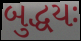
બુદ્ધયઃ